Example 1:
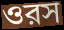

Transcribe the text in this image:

ওরস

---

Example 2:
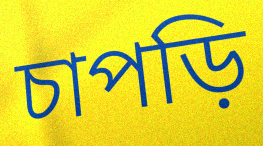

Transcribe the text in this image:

চাপড়ি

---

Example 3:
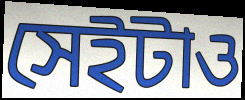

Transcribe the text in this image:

সেইটাও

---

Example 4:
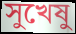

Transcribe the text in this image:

সুখেষু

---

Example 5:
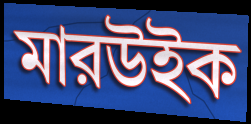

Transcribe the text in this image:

মারউইক